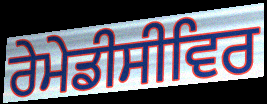
ਰੇਮੇਡੀਸੀਵਿਰ